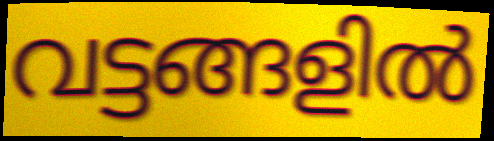
വട്ടങ്ങളിൽ